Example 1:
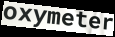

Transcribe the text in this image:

oxymeter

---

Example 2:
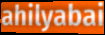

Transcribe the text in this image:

ahilyabai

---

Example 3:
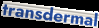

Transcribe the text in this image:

transdermal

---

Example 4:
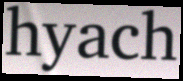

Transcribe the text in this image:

hyach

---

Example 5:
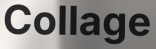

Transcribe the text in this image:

Collage